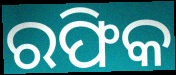
ରଫିକ